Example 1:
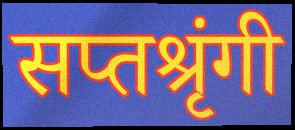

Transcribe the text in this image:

सप्तश्रृंगी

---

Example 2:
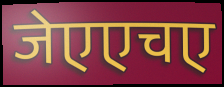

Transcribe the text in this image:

जेएएचए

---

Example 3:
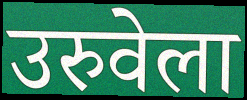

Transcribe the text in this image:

उरुवेला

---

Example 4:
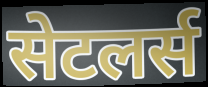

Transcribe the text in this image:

सेटलर्स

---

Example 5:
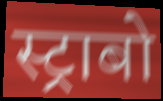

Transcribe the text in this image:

स्ट्राबो